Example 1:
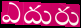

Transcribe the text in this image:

ఎదురు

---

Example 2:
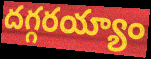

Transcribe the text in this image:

దగ్గరయ్యాం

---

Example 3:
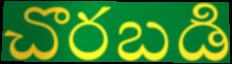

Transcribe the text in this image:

చొరబడి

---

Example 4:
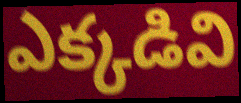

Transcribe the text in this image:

ఎక్కడివి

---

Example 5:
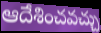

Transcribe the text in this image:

ఆదేశించవచ్చు